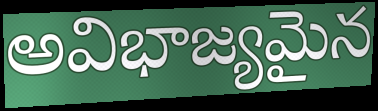
అవిభాజ్యమైన